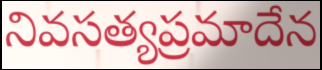
నివసత్యప్రమాదేన